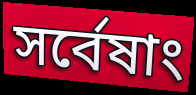
সর্বেষাং